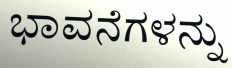
ಭಾವನೆಗಳನ್ನು